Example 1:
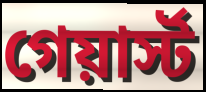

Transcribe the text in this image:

গেয়ার্স্ট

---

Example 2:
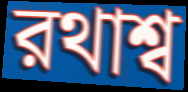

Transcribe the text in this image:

রথাশ্ব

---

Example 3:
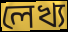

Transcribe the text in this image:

লেখ্য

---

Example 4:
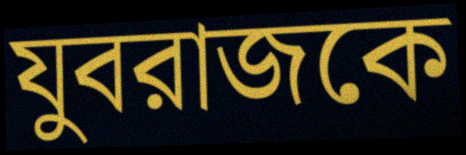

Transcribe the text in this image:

যুবরাজকে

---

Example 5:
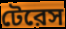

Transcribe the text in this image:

টেরেস